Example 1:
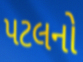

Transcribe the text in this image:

પટલનો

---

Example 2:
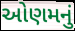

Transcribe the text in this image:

ઓણમનું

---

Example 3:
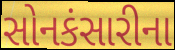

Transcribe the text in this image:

સોનકંસારીના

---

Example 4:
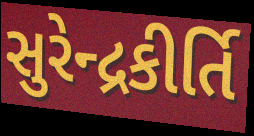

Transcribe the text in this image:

સુરેન્દ્રકીર્તિ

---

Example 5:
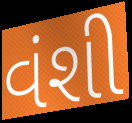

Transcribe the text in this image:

વંશી